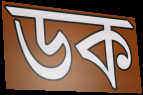
ডক